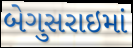
બેગુસરાઇમાં